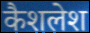
कैशलेश